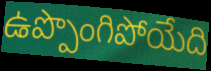
ఉప్పొంగిపోయేది